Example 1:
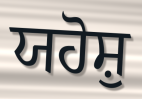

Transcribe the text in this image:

ਯਹੋਸ਼ੁ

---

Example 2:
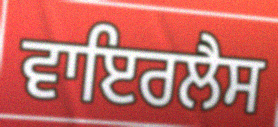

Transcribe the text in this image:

ਵਾਇਰਲੈਸ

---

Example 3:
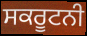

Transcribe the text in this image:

ਸਕਰੂਟਨੀ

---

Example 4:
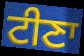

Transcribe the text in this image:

ਟੀਣਾ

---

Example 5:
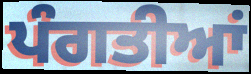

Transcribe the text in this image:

ਪੰਗਤੀਆਂ